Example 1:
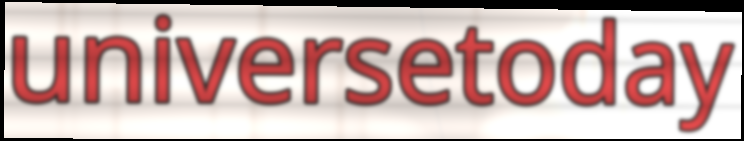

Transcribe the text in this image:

universetoday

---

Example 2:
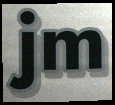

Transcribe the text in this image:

jm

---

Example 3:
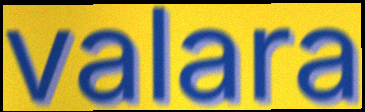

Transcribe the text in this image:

valara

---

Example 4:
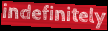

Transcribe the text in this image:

indefinitely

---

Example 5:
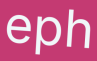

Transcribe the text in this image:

eph